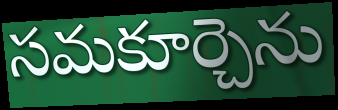
సమకూర్చెను